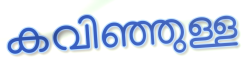
കവിഞ്ഞുള്ള